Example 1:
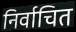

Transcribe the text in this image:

निर्वाचित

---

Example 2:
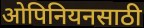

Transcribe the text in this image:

ओपिनियनसाठी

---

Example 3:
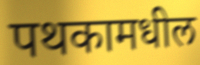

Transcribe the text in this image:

पथकामधील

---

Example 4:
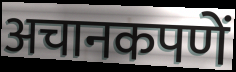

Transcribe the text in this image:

अचानकपणें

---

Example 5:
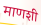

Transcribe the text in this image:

माणशी